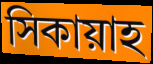
সিকায়াহ